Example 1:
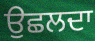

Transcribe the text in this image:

ਉਛਲਦਾ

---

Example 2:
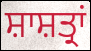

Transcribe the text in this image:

ਸ਼ਾਸ਼ਤ੍ਰਾਂ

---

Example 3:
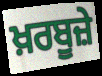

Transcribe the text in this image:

ਖ਼ਰਬੂਜ਼ੇ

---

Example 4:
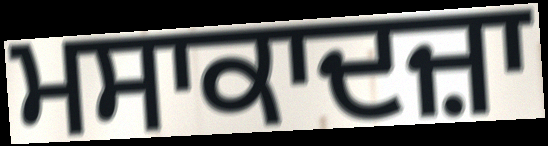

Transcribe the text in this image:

ਮਸਾਕਾਦਜ਼ਾ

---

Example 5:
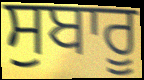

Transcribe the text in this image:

ਸੁਬਾਰੂ